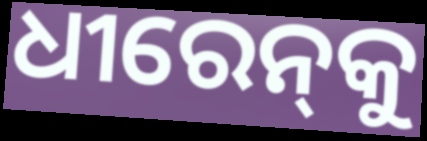
ଧୀରେନ୍‌କୁ